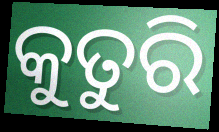
କୁତୁରି